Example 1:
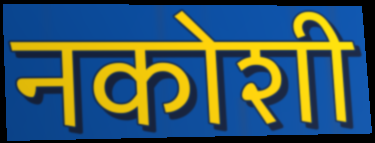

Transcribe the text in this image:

नकोशी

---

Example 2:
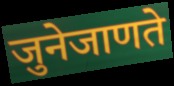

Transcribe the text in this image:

जुनेजाणते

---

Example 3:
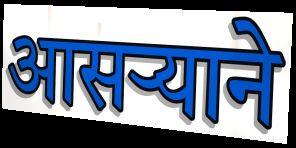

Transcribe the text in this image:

आसर्‍याने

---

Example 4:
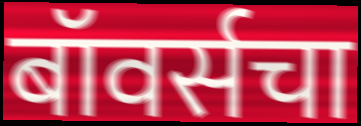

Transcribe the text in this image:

बॉवर्सचा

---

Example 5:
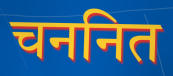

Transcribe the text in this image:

चननित